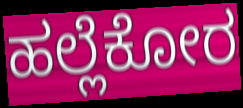
ಹಲ್ಲೆಕೋರ